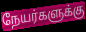
நேயர்களுக்கு